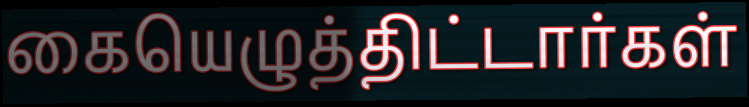
கையெழுத்திட்டார்கள்